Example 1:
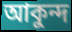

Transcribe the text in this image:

আকুন্দ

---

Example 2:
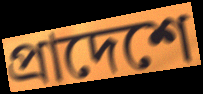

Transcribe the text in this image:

প্রাদেশে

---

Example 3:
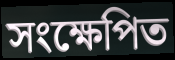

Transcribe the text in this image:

সংক্ষেপিত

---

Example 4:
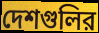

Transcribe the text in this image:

দেশগুলির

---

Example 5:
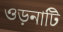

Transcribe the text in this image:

ওড়নাটি